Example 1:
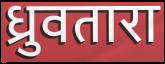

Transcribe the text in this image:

ध्रुवतारा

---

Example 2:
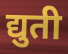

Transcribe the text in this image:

द्युती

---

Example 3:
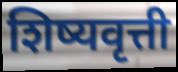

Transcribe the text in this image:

शिष्यवृत्ती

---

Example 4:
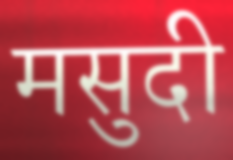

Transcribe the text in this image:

मसुदी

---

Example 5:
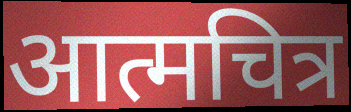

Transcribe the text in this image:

आत्मचित्र